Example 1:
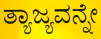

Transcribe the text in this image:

ತ್ಯಾಜ್ಯವನ್ನೇ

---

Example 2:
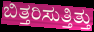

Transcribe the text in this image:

ಬಿತ್ತರಿಸುತ್ತಿತ್ತು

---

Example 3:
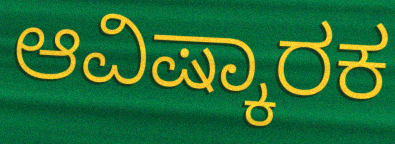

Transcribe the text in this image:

ಆವಿಷ್ಕಾರಕ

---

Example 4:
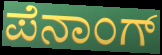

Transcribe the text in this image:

ಪೆನಾಂಗ್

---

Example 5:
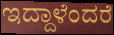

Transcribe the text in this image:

ಇದ್ದಾಳೆಂದರೆ